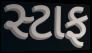
સ્ટાફ